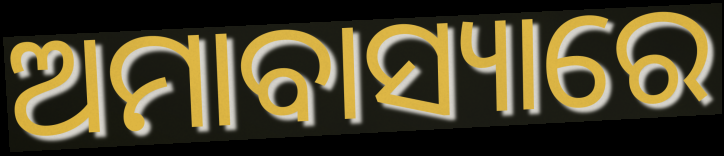
ଅମାବାସ୍ୟାରେ